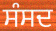
ਸੰਸਦ